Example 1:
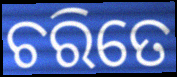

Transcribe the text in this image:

ଚରିତେ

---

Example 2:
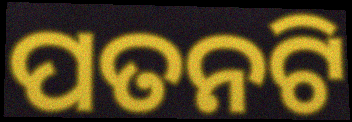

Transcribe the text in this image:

ପତନଟି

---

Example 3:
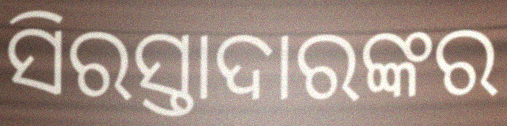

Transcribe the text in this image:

ସିରସ୍ତାଦାରଙ୍କର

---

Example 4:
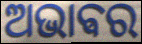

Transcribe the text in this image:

ଅଭାଵର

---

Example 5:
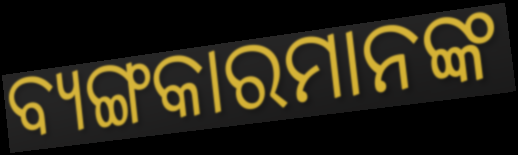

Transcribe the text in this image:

ବ୍ୟଙ୍ଗକାରମାନଙ୍କ